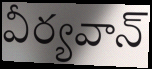
వీర్యవాన్